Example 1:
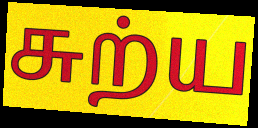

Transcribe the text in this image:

சுற்ய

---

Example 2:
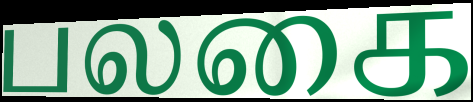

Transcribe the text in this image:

பலகை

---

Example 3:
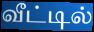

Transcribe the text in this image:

வீட்டில்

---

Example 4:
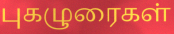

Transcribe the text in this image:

புகழுரைகள்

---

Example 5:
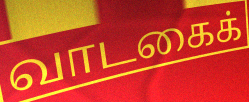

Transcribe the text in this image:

வாடகைக்